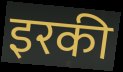
इरकी